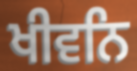
ਖੀਵਨਿ